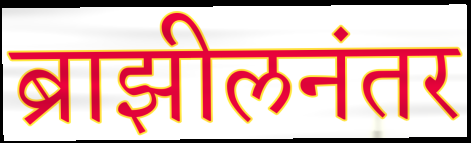
ब्राझीलनंतर